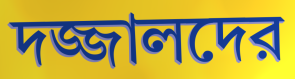
দজ্জালদের